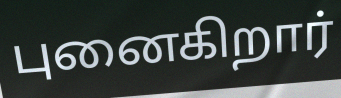
புனைகிறார்